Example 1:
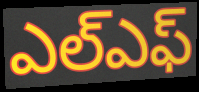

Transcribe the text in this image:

ఎల్ఎఫ్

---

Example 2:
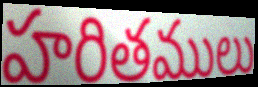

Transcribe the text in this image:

హరితములు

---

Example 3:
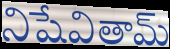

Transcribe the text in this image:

నిషేవితామ్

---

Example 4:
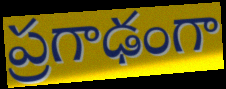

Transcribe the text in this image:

ప్రగాఢంగా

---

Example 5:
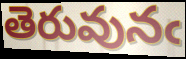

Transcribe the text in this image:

తెరువునఁ